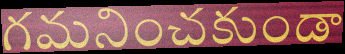
గమనించకుండా